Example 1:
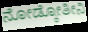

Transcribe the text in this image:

ನೋಡ್ಕೋತೀನಿ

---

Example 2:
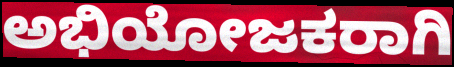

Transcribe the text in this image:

ಅಭಿಯೋಜಕರಾಗಿ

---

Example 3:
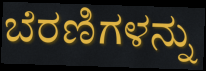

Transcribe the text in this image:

ಬೆರಣಿಗಳನ್ನು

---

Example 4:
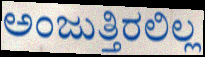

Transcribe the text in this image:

ಅಂಜುತ್ತಿರಲಿಲ್ಲ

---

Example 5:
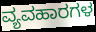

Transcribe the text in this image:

ವ್ಯವಹಾರಗಳ